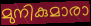
മുനികുമാരാ